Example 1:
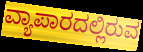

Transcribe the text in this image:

ವ್ಯಾಪಾರದಲ್ಲಿರುವ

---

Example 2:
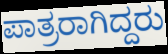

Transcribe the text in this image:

ಪಾತ್ರರಾಗಿದ್ದರು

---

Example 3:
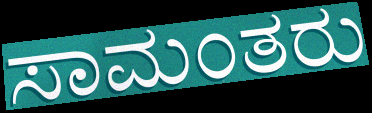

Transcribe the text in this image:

ಸಾಮಂತರು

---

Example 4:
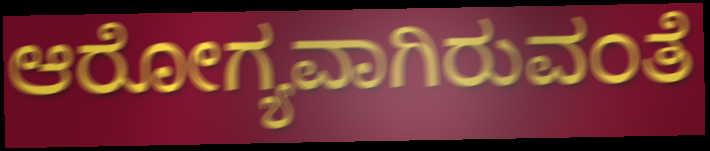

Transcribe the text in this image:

ಆರೋಗ್ಯವಾಗಿರುವಂತೆ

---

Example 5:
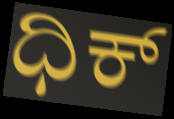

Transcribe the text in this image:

ಧಿಕ್